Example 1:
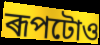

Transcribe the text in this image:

ৰূপটোও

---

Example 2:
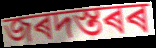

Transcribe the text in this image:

জৰদস্তৰৰ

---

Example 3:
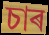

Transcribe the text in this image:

চাৰ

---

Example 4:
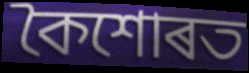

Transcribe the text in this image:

কৈশোৰত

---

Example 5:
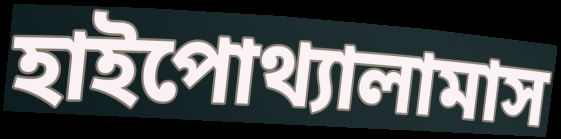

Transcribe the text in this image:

হাইপোথ্যালামাস